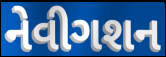
નેવીગશન